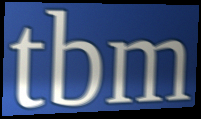
tbm